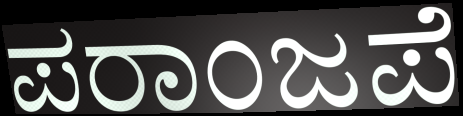
ಪರಾಂಜಪೆ